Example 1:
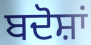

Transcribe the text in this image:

ਬਦੋਸ਼ਾਂ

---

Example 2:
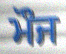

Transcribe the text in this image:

ਮੌਜ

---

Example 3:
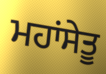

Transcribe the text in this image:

ਮਹਾਂਸੇਤੂ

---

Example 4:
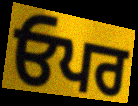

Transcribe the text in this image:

ਓਪਰ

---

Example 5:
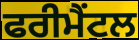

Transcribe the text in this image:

ਫਰੀਮੈਂਟਲ